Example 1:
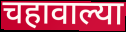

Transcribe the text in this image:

चहावाल्या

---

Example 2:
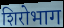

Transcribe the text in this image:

शिरोभाग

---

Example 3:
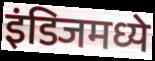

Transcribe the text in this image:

इंडिजमध्ये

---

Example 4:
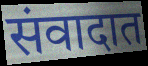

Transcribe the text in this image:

संवादात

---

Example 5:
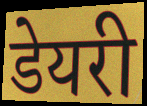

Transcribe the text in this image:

डेयरी